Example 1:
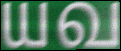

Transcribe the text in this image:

யவ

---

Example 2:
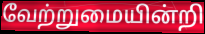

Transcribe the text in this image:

வேற்றுமையின்றி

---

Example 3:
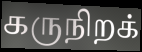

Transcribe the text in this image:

கருநிறக்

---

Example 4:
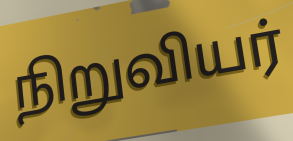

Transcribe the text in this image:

நிறுவியர்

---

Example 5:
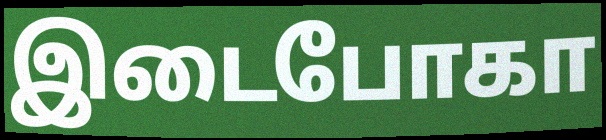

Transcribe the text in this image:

இடைபோகா